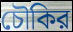
চৌকির